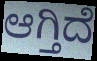
ಆಗ್ತಿದೆ